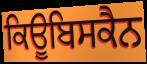
ਕਿਊਬਿਸਕੈਨ